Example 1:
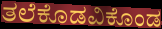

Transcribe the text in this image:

ತಲೆಕೊಡವಿಕೊಂಡ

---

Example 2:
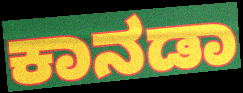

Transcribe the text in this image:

ಕಾನಡಾ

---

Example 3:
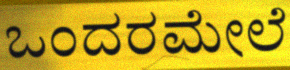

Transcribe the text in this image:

ಒಂದರಮೇಲೆ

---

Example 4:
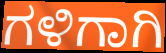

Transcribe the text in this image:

ಗಳಿಗಾಗಿ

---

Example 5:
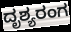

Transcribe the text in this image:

ದೃಶ್ಯರಂಗ